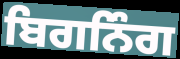
ਬਿਗਨਿੰਗ